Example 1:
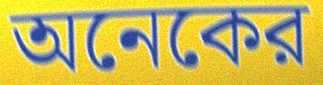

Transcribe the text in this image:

অনেকের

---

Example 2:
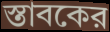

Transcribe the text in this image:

স্তাবকের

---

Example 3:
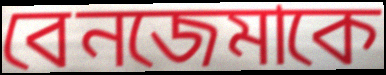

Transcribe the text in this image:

বেনজেমাকে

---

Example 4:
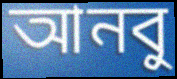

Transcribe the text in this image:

আনবু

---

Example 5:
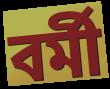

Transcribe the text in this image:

বর্মী